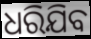
ଧରିଯିବ